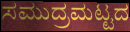
ಸಮುದ್ರಮಟ್ಟದ